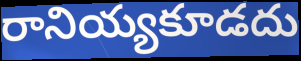
రానియ్యకూడదు